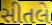
સીતલે